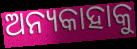
ଅନ୍ୟକାହାକୁ